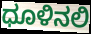
ಧೂಳಿನಲಿ